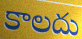
కాలదు